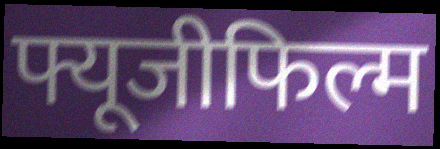
फ्यूजीफिल्म